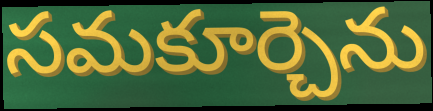
సమకూర్చెను